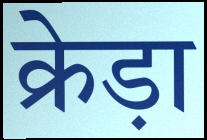
क्रेड़ा